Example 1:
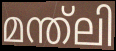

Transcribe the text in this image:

മന്ത്ലി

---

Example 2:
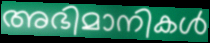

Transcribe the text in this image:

അഭിമാനികൾ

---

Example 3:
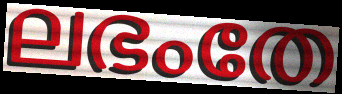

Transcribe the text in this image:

ലഭംതേ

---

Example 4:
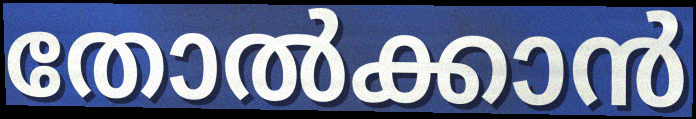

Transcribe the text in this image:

തോൽക്കാൻ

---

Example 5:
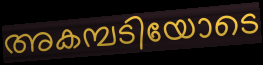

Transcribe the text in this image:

അകമ്പടിയോടെ